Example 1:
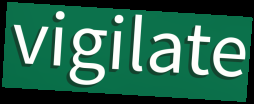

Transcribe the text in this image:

vigilate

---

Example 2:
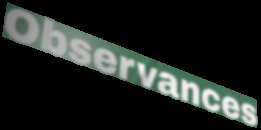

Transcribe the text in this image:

Observances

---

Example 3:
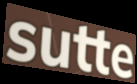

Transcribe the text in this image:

sutte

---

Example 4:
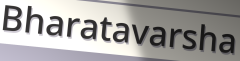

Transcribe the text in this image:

Bharatavarsha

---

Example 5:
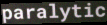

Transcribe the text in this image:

paralytic